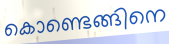
കൊണ്ടെങ്ങിനെ